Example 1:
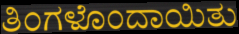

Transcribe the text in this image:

ತಿಂಗಳೊಂದಾಯಿತು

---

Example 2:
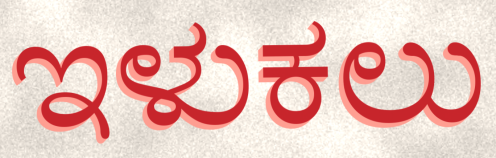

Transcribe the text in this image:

ಇಳುಕಲು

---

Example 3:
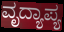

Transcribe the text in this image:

ವೃದ್ಯಾಪ್ಯ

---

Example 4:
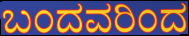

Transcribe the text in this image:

ಬಂದವರಿಂದ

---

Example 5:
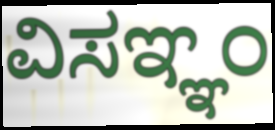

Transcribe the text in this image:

ವಿಸಞ್ಞಂ